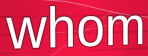
whom